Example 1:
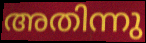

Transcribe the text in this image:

അതിന്നു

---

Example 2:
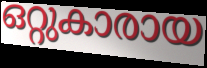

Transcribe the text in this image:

ഒറ്റുകാരായ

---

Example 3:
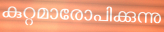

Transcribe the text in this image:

കുറ്റമാരോപിക്കുന്നു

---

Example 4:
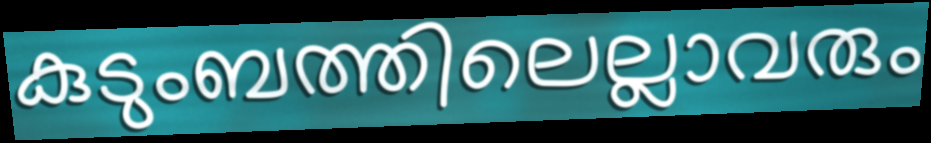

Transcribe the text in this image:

കുടുംബത്തിലെല്ലാവരും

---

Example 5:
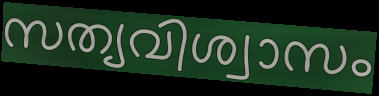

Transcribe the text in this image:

സത്യവിശ്വാസം